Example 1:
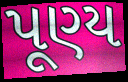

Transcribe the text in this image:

પૂણ્ય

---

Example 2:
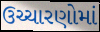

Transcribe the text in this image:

ઉચ્ચારણોમાં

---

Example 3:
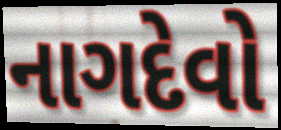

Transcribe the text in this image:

નાગદેવો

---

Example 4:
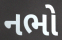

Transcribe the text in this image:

નભો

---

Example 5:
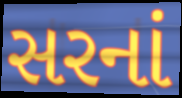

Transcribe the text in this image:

સરનાં